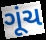
ગૂંચ